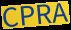
CPRA